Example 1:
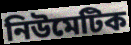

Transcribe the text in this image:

নিউমেটিক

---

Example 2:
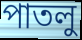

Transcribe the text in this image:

পাতলু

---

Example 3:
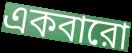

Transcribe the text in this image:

একবারো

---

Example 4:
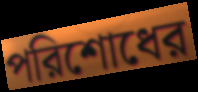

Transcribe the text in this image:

পরিশোধের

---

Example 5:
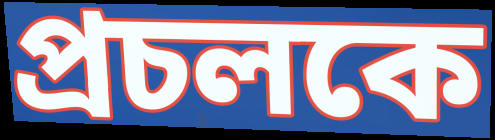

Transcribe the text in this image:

প্রচলকে